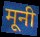
मूनी